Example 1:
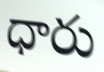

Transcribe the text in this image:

ధారు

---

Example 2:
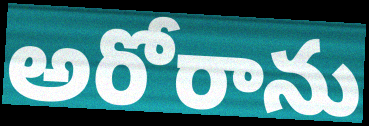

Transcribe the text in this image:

అరోరాను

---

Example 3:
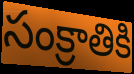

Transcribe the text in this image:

సంక్రాతికి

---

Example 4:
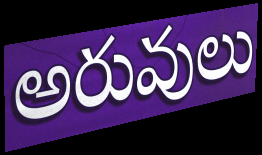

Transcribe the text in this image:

అరువులు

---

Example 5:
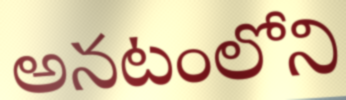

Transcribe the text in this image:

అనటంలోని